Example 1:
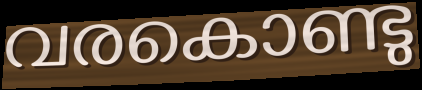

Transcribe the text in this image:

വരകൊണ്ടു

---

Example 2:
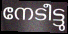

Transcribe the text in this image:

നേടീട്ടു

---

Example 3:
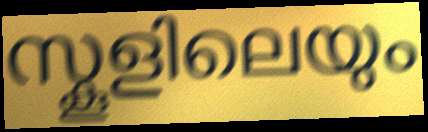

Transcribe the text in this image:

സ്കൂളിലെയും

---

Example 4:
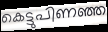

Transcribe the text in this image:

കെട്ടുപിണഞ്ഞ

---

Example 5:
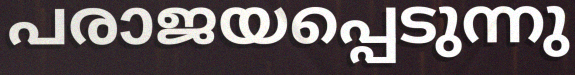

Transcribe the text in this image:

പരാജയപ്പെടുന്നു